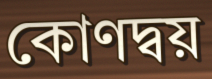
কোণদ্বয়